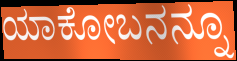
ಯಾಕೋಬನನ್ನೂ